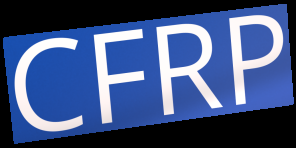
CFRP